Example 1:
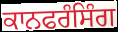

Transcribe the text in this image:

ਕਾਨਫਰੰਸਿੰਗ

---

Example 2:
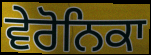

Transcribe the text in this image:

ਵੇਰੋਨਿਕਾ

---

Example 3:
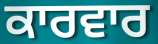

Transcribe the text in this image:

ਕਾਰਵਾਰ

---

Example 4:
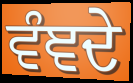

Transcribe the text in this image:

ਵੰਞਦੇ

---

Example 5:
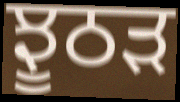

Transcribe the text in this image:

ਝੂਠੜ